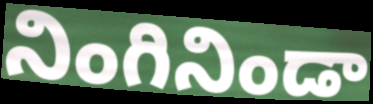
నింగినిండా